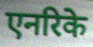
एनरिके